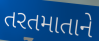
તરતમાતાને